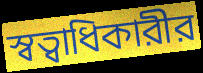
স্বত্বাধিকারীর